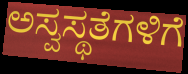
ಅಸ್ವಸ್ಥತೆಗಳಿಗೆ